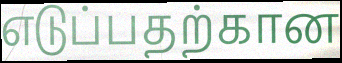
எடுப்பதற்கான